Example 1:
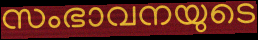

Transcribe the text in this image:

സംഭാവനയുടെ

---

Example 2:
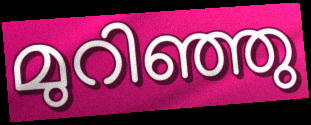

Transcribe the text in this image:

മുറിഞ്ഞു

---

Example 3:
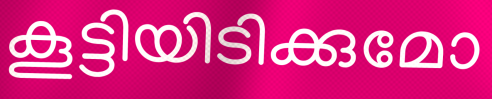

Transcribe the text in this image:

കൂട്ടിയിടിക്കുമോ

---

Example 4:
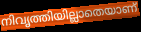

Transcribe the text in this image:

നിവൃത്തിയില്ലാതെയാണ്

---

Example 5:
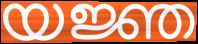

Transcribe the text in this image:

യജ്ഞ